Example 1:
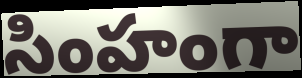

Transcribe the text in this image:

సింహంగా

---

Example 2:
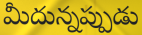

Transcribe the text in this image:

మీదున్నప్పుడు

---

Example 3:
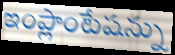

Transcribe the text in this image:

ఇంప్లాంటేషన్ను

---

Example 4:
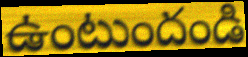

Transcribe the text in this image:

ఉంటుందండి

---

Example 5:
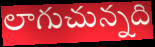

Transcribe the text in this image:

లాగుచున్నది